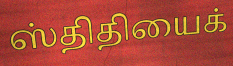
ஸ்திதியைக்